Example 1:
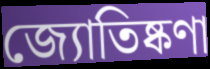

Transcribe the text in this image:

জ্যোতিষ্কণা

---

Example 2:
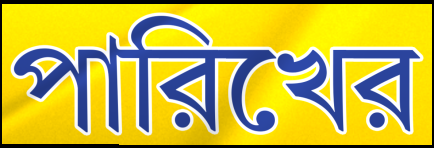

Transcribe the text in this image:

পারিখের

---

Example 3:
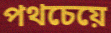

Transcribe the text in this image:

পথচেয়ে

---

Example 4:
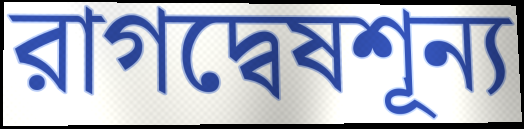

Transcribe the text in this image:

রাগদ্বেষশূন্য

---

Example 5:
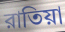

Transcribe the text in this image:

রাতিয়া